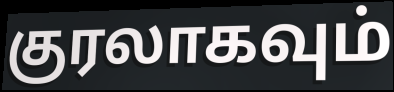
குரலாகவும்